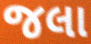
જલા